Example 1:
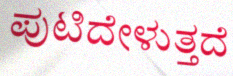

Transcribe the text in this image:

ಪುಟಿದೇಳುತ್ತದೆ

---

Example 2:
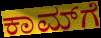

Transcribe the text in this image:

ಕಾಮ್‌ಗೆ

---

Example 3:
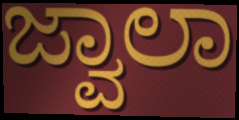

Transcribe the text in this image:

ಜ್ವಾಲಾ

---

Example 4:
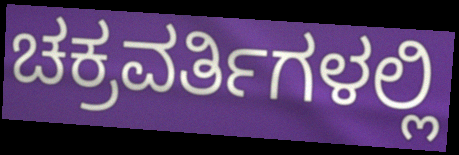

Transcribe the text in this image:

ಚಕ್ರವರ್ತಿಗಳಲ್ಲಿ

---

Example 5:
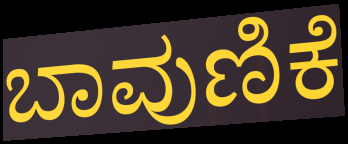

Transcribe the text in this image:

ಬಾವುಣಿಕೆ